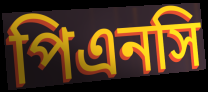
পিএনসি